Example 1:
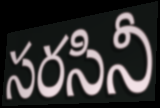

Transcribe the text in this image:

సరసినీ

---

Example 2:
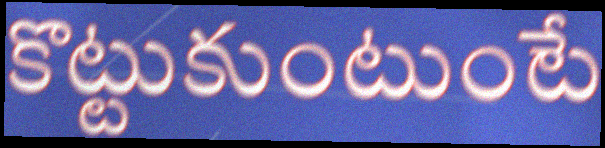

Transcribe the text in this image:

కొట్టుకుంటుంటే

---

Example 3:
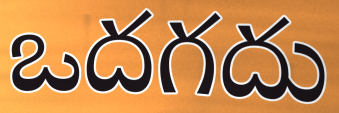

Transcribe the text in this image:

ఒదగదు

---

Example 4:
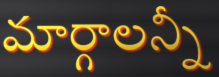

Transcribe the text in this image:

మార్గాలన్నీ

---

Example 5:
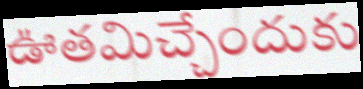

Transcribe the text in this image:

ఊతమిచ్చేందుకు